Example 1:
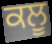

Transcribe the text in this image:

ਕਲੂ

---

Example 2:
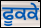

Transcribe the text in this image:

ਫੂਕਕੇ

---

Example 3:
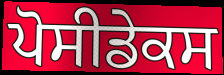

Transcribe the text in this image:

ਪੋਸੀਡੇਕਸ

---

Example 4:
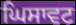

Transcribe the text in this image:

ਘਿਸਾਵਟ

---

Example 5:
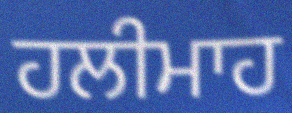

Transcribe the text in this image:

ਹਲੀਮਾਹ